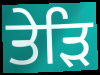
ਤੇੜਿ